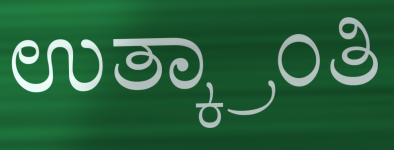
ಉತ್ಕ್ರಾಂತಿ